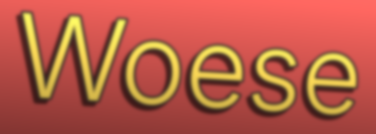
Woese